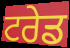
ਟਰੇਡ